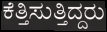
ಕೆತ್ತಿಸುತ್ತಿದ್ದರು